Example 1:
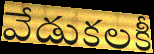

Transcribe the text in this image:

వేడుకలకీ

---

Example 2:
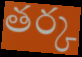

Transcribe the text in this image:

తర్క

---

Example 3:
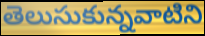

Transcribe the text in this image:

తెలుసుకున్నవాటిని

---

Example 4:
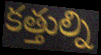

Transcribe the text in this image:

కత్తుల్ని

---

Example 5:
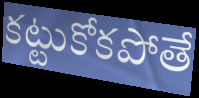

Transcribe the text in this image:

కట్టుకోకపోతే